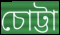
চোট্টা